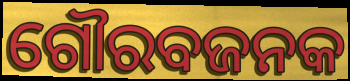
ଗୌରବଜନକ